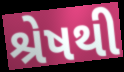
શ્રેષથી